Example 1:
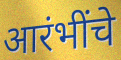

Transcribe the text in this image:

आरंभींचे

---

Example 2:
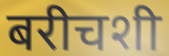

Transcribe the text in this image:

बरीचशी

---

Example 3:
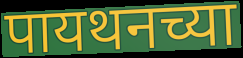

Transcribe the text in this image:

पायथनच्या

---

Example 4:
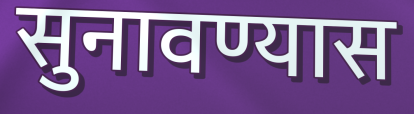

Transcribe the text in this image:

सुनावण्यास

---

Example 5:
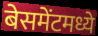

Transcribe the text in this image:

बेसमेंटमध्ये